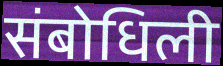
संबोधिली